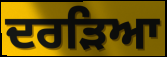
ਦਰੜਿਆ